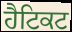
ਹੈਟਿਕਟ